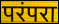
परंपरा